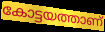
കോട്ടയത്താണ്